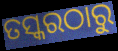
ତସ୍କରଠାରୁ